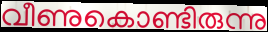
വീണുകൊണ്ടിരുന്നു